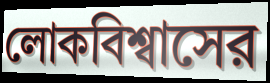
লোকবিশ্বাসের